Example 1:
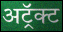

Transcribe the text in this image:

अट्रॅक्ट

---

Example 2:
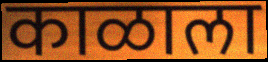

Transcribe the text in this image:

काळाला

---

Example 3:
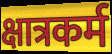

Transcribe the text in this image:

क्षात्रकर्म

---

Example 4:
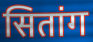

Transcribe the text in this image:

सितांग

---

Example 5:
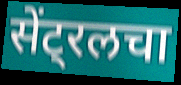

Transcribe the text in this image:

सेंट्रलचा